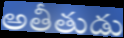
అతీతుడు